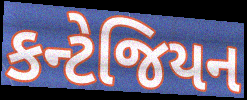
કન્ટેજિયન